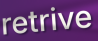
retrive